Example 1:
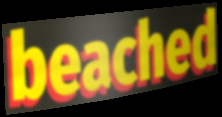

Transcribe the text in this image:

beached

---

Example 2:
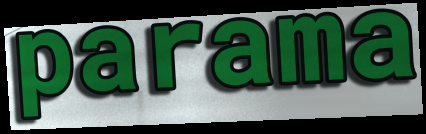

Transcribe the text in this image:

parama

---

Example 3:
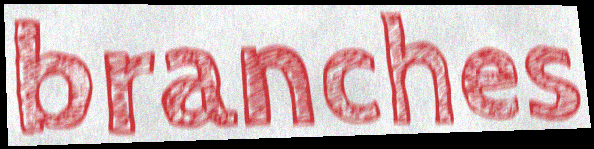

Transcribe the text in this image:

branches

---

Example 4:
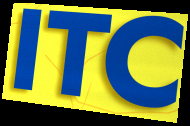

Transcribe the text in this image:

ITC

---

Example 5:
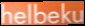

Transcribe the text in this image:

helbeku